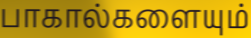
பாகால்களையும்